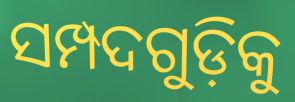
ସମ୍ପଦଗୁଡ଼ିକୁ